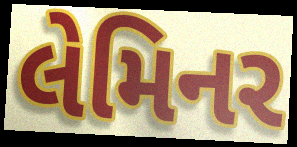
લેમિનર